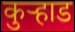
कुर्‍हाड